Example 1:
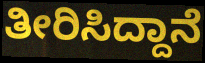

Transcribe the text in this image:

ತೀರಿಸಿದ್ದಾನೆ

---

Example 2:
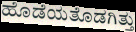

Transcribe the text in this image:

ಹೊಡೆಯತೊಡಗಿತ್ತು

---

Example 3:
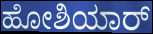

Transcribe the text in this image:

ಹೋಶಿಯಾರ್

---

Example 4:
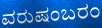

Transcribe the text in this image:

ವರುಷಂಬರಂ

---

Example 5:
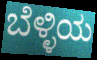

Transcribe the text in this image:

ಬೆಳ್ಳಿಯ